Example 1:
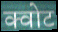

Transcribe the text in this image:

क्वोट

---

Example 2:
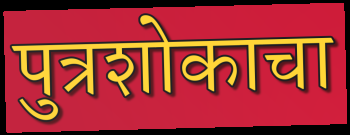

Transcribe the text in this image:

पुत्रशोकाचा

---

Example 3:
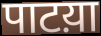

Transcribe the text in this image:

पाटय़ा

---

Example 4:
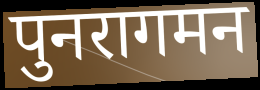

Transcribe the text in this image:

पुनरागमन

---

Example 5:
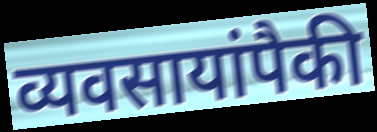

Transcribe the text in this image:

व्यवसायांपैकी